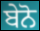
ਬੇਨੋ